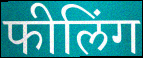
फीलिंग